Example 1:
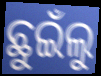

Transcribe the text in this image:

ଛୁଇଁଲୁ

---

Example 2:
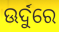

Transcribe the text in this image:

ଊର୍ଦୁରେ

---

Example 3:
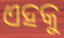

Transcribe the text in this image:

ଏହକୁ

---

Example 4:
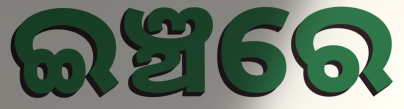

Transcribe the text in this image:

ଇଞ୍ଚରେ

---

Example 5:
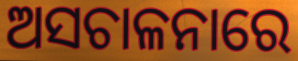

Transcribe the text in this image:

ଅସଚାଳନାରେ